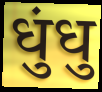
धुंधु